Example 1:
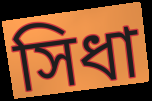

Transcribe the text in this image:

সিধা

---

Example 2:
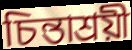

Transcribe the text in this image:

চিন্তাশ্রয়ী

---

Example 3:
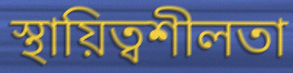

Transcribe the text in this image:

স্থায়িত্বশীলতা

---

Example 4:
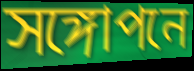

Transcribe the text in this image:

সঙ্গোপনে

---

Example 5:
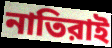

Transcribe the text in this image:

নাতিরাই